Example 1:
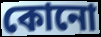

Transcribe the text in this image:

কোনো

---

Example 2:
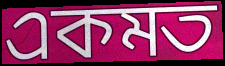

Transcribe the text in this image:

একমত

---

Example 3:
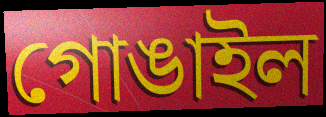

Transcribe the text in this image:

গোঙাইল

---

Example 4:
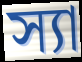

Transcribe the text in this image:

স্যা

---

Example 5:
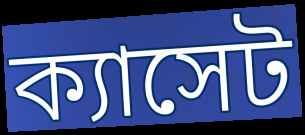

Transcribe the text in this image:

ক্যাসেট